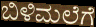
ಬಿಳಿಮಲೆಗೆ